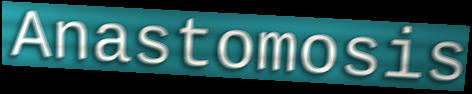
Anastomosis